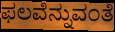
ಫಲವೆನ್ನುವಂತೆ